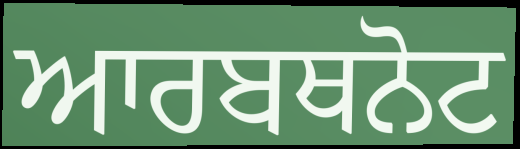
ਆਰਬਥਨੋਟ